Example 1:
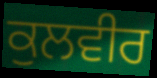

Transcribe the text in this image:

ਕੁਲਵੀਰ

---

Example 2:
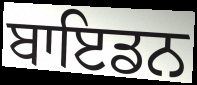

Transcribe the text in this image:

ਬਾਇਡਨ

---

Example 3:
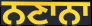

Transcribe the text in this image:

ਨਣਾਨਾ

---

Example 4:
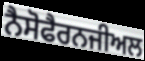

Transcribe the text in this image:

ਨੈਸੋਫੈਰਨਜੀਅਲ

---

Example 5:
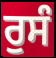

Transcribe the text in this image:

ਰੁਸੰ